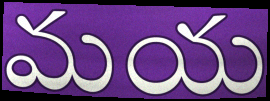
మయ